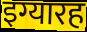
इग्यारह